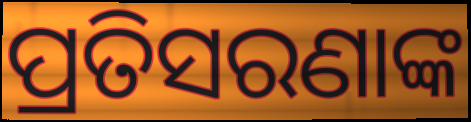
ପ୍ରତିସରଣାଙ୍କ